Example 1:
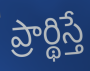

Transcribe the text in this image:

ప్రార్థిస్తే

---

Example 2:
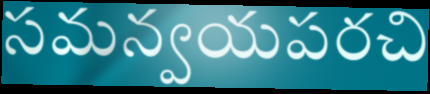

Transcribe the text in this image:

సమన్వయపరచి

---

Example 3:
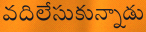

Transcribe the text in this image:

వదిలేసుకున్నాడు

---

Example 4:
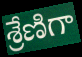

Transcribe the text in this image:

శ్రేణిగా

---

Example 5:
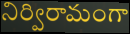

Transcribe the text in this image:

నిర్విరామంగా